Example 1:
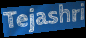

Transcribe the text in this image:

Tejashri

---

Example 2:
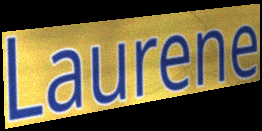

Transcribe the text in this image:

Laurene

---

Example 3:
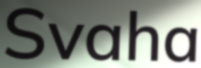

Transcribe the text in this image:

Svaha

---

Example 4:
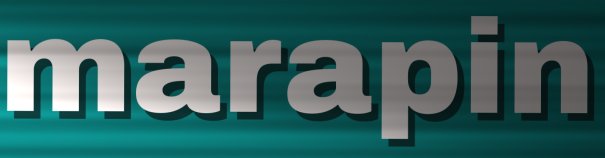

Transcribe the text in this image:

marapin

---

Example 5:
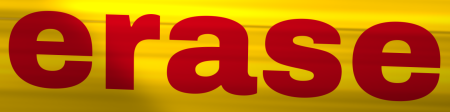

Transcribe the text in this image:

erase